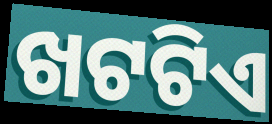
ଖଟଟିଏ